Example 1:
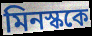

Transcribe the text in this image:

মিনস্ককে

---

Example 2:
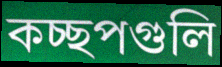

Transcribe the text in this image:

কচ্ছপগুলি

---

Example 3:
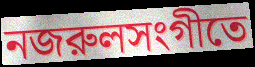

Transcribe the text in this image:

নজরুলসংগীতে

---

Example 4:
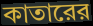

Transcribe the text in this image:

কাতারের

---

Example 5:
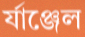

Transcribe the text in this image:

র্যাঞ্জেল